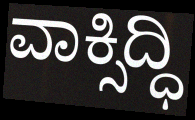
ವಾಕ್ಸಿದ್ಧಿ